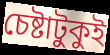
চেষ্টাটুকুই